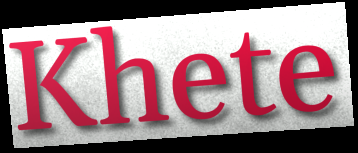
Khete